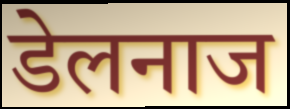
डेलनाज